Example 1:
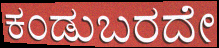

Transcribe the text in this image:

ಕಂಡುಬರದೇ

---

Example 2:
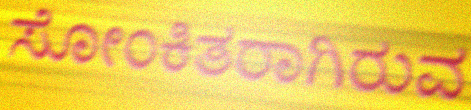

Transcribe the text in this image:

ಸೋಂಕಿತರಾಗಿರುವ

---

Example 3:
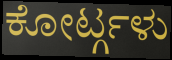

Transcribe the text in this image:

ಕೋರ್ಟ್ಗಳು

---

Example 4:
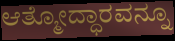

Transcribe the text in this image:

ಆತ್ಮೋದ್ಧಾರವನ್ನೂ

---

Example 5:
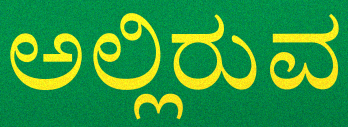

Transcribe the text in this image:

ಅಲ್ಲಿರುವ